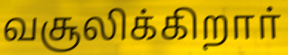
வசூலிக்கிறார்